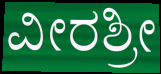
ವೀರಶ್ರೀ